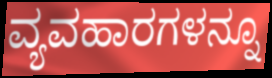
ವ್ಯವಹಾರಗಳನ್ನೂ